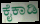
ಕೈಕಾಡಿ